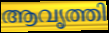
ആവൃത്തി